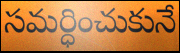
సమర్ధించుకునే